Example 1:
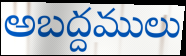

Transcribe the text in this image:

అబద్దములు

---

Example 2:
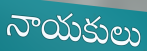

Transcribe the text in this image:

నాయకులు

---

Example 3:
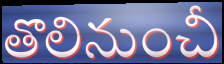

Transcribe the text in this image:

తొలినుంచీ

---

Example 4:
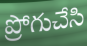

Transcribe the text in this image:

ప్రోగుచేసి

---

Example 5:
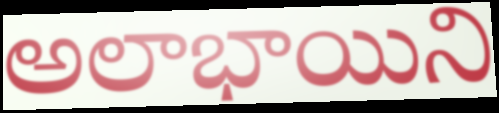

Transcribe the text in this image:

అలాభాయిని